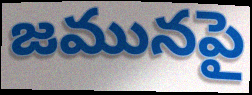
జమునపై